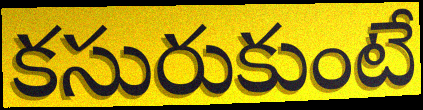
కసురుకుంటే